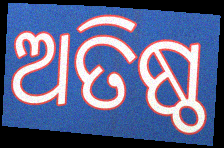
ଅତିଷ୍ଠ